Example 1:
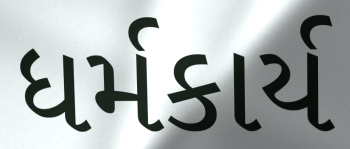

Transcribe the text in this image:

ધર્મકાર્ય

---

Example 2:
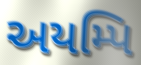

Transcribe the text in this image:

અયમ્પિ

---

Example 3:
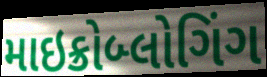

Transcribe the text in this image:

માઇક્રોબ્લોગિંગ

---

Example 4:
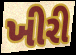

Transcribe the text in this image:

ખીરી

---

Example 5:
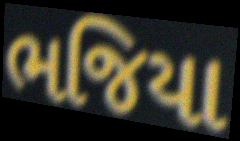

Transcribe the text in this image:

ભજિયા